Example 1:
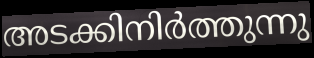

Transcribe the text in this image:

അടക്കിനിർത്തുന്നു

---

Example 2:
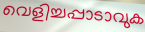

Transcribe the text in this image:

വെളിച്ചപ്പാടാവുക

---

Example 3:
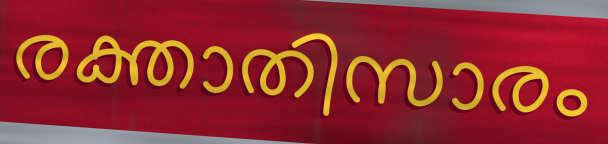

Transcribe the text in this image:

രക്താതിസാരം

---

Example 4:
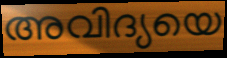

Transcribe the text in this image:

അവിദ്യയെ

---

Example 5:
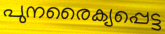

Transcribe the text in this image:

പുനരൈക്യപ്പെട്ട